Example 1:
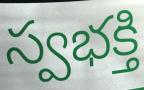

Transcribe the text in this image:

స్వభక్తి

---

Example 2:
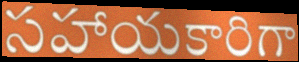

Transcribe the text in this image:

సహాయకారిగా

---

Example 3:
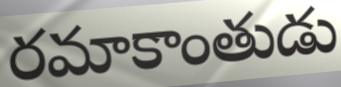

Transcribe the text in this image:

రమాకాంతుడు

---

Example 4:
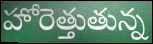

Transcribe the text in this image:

హోరెత్తుతున్న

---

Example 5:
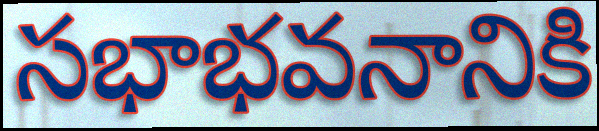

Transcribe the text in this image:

సభాభవనానికి